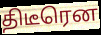
திடீரென